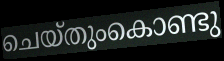
ചെയ്തുംകൊണ്ടു